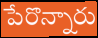
పేరొన్నారు